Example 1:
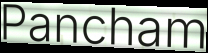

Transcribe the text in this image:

Pancham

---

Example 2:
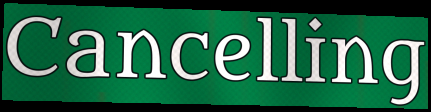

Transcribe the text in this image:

Cancelling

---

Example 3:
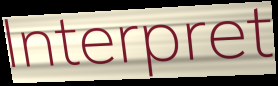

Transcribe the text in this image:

Interpret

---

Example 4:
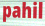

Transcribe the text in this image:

pahil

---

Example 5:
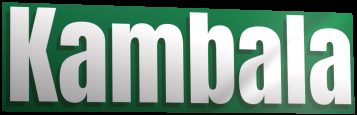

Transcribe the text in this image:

Kambala